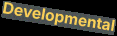
Developmental